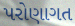
પરોણાગત